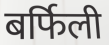
बर्फिली